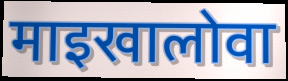
माइखालोवा